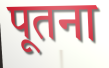
पूतना